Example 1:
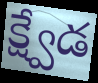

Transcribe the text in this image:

క్ష్వేడ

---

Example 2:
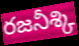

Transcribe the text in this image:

రజనీశ్కి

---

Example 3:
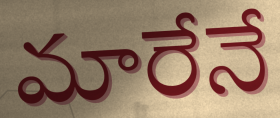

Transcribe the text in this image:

మారేనే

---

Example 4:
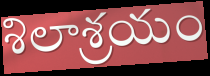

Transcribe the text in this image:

శిలాశ్రయం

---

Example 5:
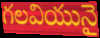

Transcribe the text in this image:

గలవియునై